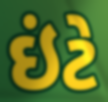
ઇંટે